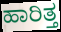
ಹಾರಿತ್ತ